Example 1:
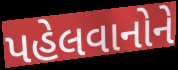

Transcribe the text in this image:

પહેલવાનોને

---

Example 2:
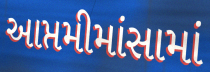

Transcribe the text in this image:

આપ્તમીમાંસામાં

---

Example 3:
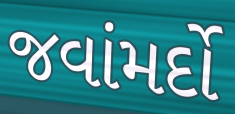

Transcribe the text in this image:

જવાંમર્દો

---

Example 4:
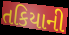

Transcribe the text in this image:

તકિયાની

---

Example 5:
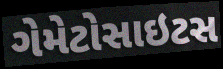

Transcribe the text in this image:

ગેમેટોસાઇટસ